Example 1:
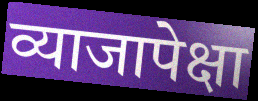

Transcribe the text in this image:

व्याजापेक्षा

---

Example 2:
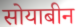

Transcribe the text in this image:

सोयाबीन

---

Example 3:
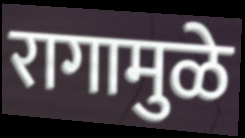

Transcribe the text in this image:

रागामुळे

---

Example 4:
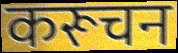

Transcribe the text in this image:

करूचन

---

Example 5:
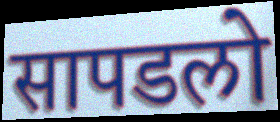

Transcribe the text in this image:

सापडलो